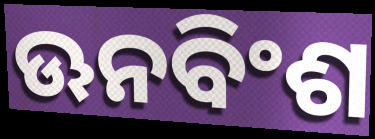
ଊନବିଂଶ